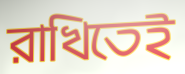
রাখিতেই